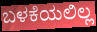
ಬಳಕೆಯಲಿಲ್ಲ